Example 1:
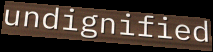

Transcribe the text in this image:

undignified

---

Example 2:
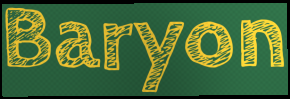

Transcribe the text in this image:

Baryon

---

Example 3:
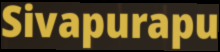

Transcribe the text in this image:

Sivapurapu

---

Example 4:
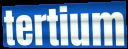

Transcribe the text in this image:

tertium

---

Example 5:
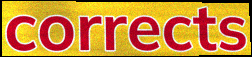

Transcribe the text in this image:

corrects